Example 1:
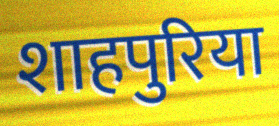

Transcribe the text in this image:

शाहपुरिया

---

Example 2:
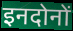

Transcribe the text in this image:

इनदोनों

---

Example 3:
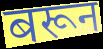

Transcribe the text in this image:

बरून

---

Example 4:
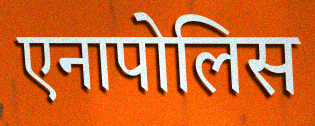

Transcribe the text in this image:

एनापोलिस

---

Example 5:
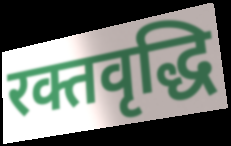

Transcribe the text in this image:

रक्तवृद्धि